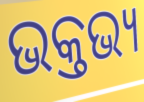
ଭକ୍ତଭ୍ୟ